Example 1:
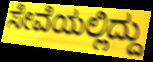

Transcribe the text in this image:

ಸೇವೆಯಲ್ಲಿದ್ದು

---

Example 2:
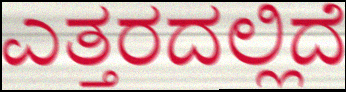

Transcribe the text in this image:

ಎತ್ತರದಲ್ಲಿದೆ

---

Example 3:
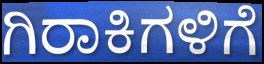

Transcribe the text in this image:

ಗಿರಾಕಿಗಳಿಗೆ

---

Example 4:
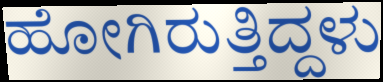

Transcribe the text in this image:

ಹೋಗಿರುತ್ತಿದ್ದಳು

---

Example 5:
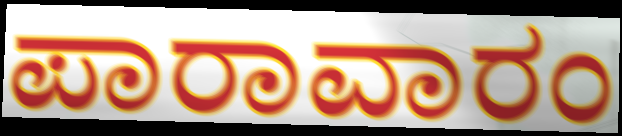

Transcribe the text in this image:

ಪಾರಾವಾರಂ